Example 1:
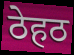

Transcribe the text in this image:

ठेहठ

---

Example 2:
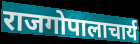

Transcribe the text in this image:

राजगोपालाचार्य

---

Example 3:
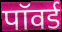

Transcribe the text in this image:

पॉवर्ड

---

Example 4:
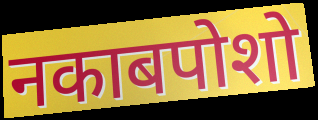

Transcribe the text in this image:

नकाबपोशो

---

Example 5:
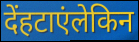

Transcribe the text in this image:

देंहटाएंलेकिन